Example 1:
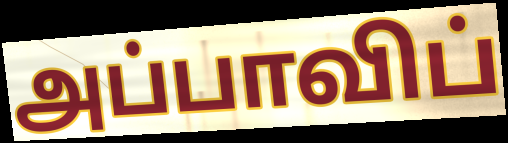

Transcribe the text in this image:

அப்பாவிப்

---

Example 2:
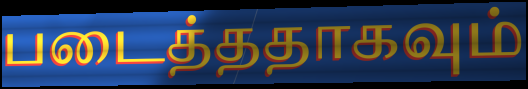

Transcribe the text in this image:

படைத்ததாகவும்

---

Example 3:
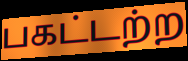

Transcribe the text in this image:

பகட்டற்ற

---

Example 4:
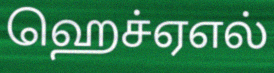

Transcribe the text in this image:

ஹெச்ஏஎல்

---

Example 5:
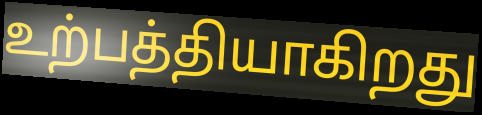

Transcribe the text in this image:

உற்பத்தியாகிறது